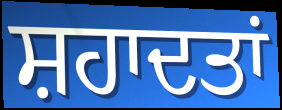
ਸ਼ਹਾਦਤਾਂ